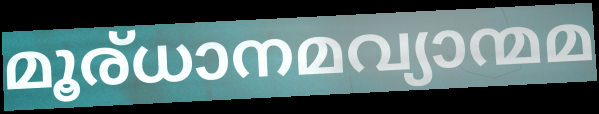
മൂര്ധാനമവ്യാന്മമ